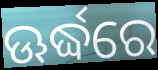
ଊର୍ଦ୍ଧରେ